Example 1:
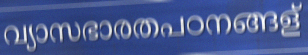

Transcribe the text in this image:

വ്യാസഭാരതപഠനങ്ങള്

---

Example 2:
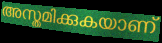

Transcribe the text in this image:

അസ്തമിക്കുകയാണ്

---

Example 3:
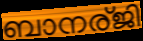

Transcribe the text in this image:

ബാനര്ജി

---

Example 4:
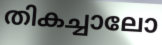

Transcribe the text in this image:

തികച്ചാലോ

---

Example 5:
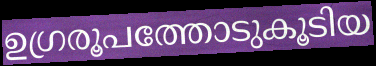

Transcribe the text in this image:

ഉഗ്രരൂപത്തോടുകൂടിയ